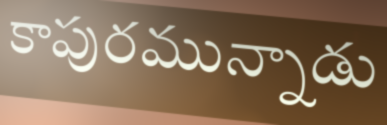
కాపురమున్నాడు